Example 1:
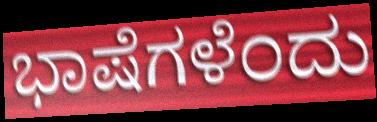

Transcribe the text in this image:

ಭಾಷೆಗಳೆಂದು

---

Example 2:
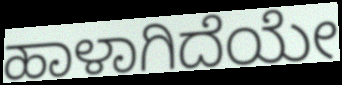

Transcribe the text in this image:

ಹಾಳಾಗಿದೆಯೇ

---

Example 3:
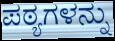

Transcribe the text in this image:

ಪಠ್ಯಗಳನ್ನು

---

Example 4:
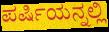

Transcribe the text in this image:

ಪರ್ಷಿಯನ್ನಲ್ಲಿ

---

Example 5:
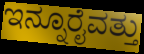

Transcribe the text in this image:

ಇನ್ನೂರೈವತ್ತು